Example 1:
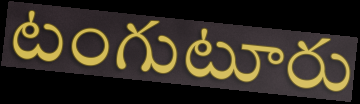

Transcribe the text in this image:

టంగుటూరు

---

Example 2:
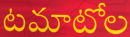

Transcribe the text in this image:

టమాటోల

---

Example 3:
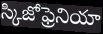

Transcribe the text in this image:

స్కిజోఫ్రెనియా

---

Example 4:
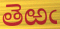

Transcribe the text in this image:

తెఱఁ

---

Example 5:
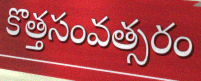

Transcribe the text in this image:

కొత్తసంవత్సరం